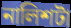
নালিশটা